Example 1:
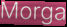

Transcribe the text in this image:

Morga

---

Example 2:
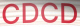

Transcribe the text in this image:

CDCD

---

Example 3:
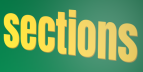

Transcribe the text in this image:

sections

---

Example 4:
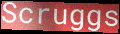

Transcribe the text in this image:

Scruggs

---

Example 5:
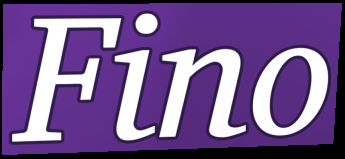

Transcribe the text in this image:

Fino